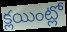
క్లయింట్లో